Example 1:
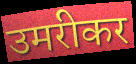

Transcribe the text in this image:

उमरीकर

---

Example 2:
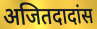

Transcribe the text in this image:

अजितदादांस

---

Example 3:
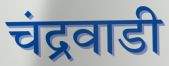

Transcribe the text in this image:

चंद्रवाडी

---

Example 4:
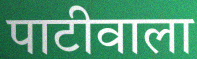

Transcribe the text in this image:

पाटीवाला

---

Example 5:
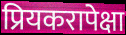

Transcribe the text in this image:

प्रियकरापेक्षा